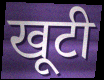
खूटी